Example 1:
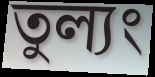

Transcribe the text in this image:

তুল্যং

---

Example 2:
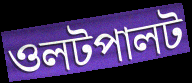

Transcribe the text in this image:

ওলটপালট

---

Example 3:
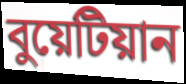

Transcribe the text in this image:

বুয়েটিয়ান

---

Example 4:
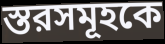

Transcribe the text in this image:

স্তরসমূহকে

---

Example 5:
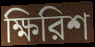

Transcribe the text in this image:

ক্ষিরিশ